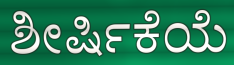
ಶೀರ್ಷಿಕೆಯೆ